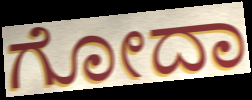
ಗೋದಾ